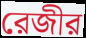
রেজীর